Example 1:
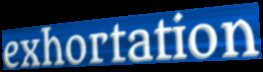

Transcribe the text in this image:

exhortation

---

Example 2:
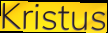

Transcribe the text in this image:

Kristus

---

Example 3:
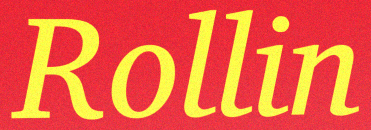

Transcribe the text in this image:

Rollin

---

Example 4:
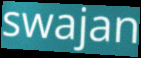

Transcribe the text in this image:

swajan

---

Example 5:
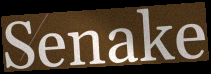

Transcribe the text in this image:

Senake